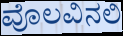
ವೊಲವಿನಲಿ